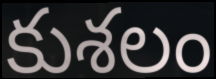
కుశలం